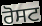
ਰੋਸਟ